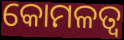
କୋମଳତ୍ୱ